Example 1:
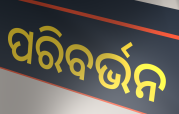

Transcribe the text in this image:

ପରିବର୍ଭନ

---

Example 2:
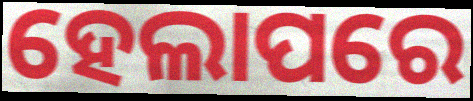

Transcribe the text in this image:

ହେଲାପରେ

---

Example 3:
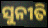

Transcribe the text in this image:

ସୁନୀତି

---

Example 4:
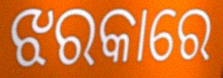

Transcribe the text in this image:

ଝରକାରେ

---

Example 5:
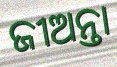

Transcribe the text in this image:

ଜୀଅନ୍ତା